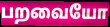
பறவையோ